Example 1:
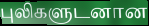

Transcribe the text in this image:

புலிகளுடனான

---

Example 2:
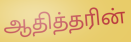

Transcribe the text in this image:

ஆதித்தரின்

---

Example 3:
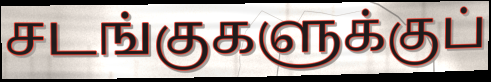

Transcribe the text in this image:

சடங்குகளுக்குப்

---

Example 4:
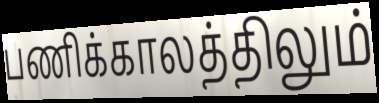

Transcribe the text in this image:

பணிக்காலத்திலும்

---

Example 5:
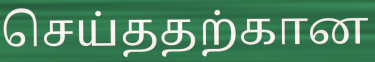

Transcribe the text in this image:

செய்ததற்கான